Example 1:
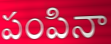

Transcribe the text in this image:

పంపినా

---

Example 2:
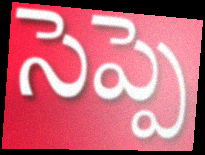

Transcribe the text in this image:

సెప్పె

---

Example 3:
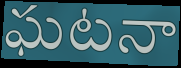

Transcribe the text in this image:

ఘటనా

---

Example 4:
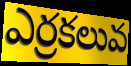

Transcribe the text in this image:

ఎర్రకలువ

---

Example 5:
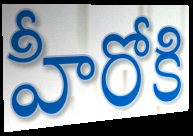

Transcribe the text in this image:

హీరోకి